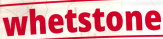
whetstone